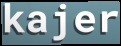
kajer